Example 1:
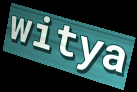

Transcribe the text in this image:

witya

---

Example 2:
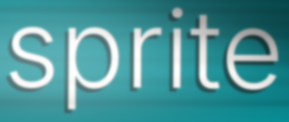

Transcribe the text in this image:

sprite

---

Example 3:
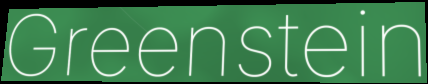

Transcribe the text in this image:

Greenstein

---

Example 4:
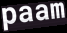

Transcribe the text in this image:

paam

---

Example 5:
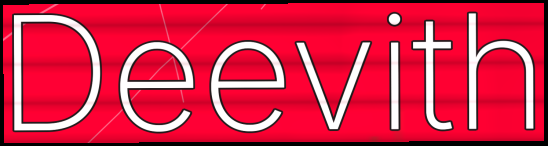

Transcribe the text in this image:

Deevith